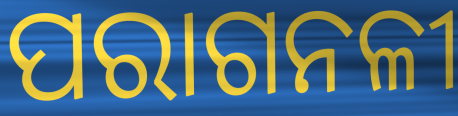
ପରାଗନଳୀ